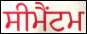
ਸੀਮੈਂਟਮ